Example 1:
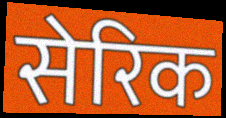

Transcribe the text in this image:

सेरिक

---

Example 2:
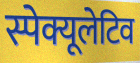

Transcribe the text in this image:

स्पेक्यूलेटिव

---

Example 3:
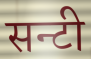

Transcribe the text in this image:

सन्टी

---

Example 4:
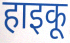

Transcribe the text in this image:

हाइकू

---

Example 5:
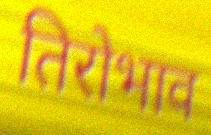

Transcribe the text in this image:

तिरोभाव